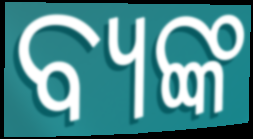
ବ୍ୟଙ୍କ